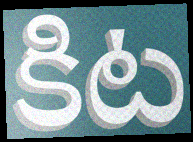
కిట